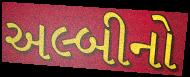
અલ્બીનો